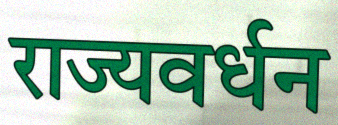
राज्‍यवर्धन